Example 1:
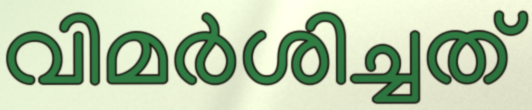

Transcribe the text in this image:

വിമർശിച്ചത്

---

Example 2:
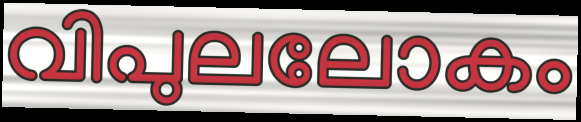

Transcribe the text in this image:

വിപുലലോകം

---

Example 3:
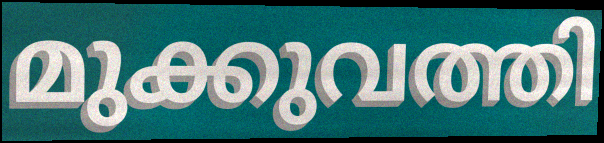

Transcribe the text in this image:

മുക്കുവത്തി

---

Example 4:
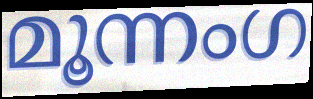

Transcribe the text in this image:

മൂന്നംഗ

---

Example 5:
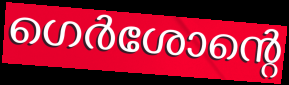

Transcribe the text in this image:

ഗെർശോന്റെ